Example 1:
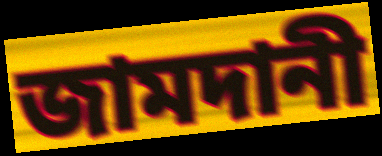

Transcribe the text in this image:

জামদানী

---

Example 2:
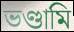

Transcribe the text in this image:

ভণ্ডামি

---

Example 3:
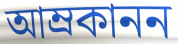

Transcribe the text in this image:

আম্রকানন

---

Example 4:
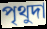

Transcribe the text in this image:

পৃথুদা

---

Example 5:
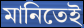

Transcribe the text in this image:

মানিতেই